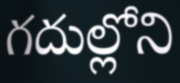
గదుల్లోని